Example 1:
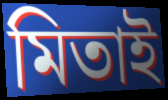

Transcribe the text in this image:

মিতাই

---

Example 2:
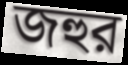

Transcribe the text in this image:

জহুর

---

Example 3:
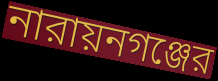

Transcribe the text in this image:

নারায়নগঞ্জের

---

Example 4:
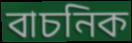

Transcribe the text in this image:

বাচনিক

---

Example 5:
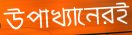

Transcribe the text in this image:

উপাখ্যানেরই